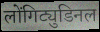
लोंगिट्युडिनल